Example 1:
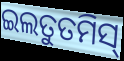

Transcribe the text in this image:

ଇଲତୁତମିସ୍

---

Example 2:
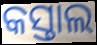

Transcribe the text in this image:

କସ୍ତାଲ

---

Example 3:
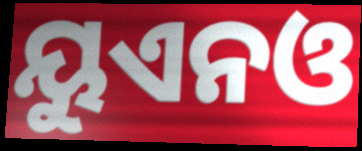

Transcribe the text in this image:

ୟୁଏନଓ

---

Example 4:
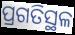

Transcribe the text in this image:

ପ୍ରଗତିସ୍ଥଳ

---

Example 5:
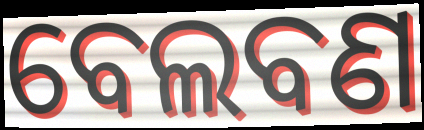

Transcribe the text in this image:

ବେଲବଣ